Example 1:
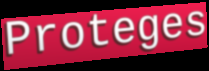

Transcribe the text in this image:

Proteges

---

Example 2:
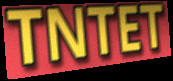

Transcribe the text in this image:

TNTET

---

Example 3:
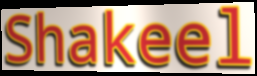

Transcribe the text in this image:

Shakeel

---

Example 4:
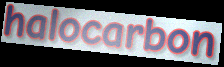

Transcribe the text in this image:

halocarbon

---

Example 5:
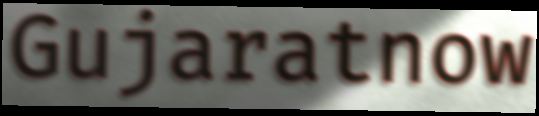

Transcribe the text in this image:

Gujaratnow